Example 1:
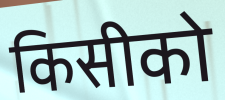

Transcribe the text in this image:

किसीको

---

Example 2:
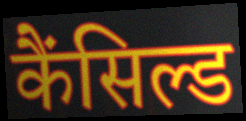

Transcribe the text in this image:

कैंसिल्ड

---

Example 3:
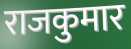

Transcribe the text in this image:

राजकुमार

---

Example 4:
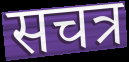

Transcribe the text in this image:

सचत्र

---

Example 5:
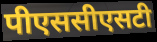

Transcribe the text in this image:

पीएससीएसटी